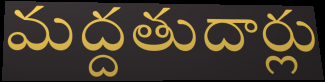
మద్దతుదార్లు